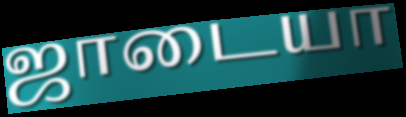
ஜாடையா